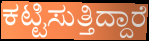
ಕಟ್ಟಿಸುತ್ತಿದ್ದಾರೆ